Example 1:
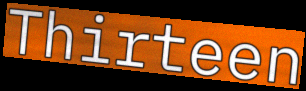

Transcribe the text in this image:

Thirteen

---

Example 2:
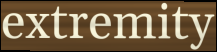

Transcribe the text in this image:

extremity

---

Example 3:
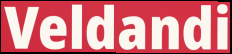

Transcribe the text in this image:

Veldandi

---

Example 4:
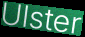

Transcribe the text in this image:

Ulster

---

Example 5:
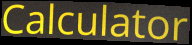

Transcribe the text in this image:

Calculator